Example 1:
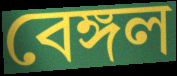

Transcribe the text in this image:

বেঙ্গল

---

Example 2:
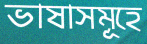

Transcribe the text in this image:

ভাষাসমূহে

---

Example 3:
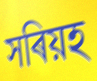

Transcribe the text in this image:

সৰিয়হ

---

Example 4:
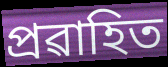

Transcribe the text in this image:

প্ৰৱাহিত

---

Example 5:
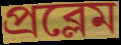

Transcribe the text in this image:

প্ৰব্লেম